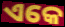
ଏକେ